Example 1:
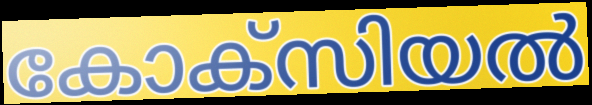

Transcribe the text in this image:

കോക്സിയൽ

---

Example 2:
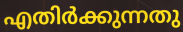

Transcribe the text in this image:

എതിർക്കുന്നതു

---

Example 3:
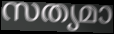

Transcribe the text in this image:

സത്യമാ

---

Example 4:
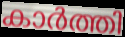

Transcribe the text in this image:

കാർത്തി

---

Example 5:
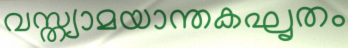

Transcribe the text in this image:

വസ്ത്യാമയാന്തകഘൃതം